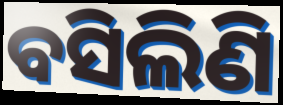
ବସିଲିଣି